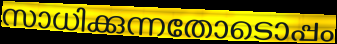
സാധിക്കുന്നതോടൊപ്പം